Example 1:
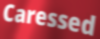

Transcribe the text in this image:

Caressed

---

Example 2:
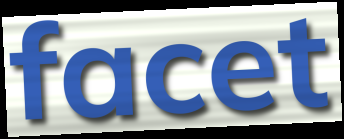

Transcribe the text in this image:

facet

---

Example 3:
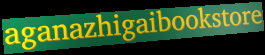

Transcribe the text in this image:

aganazhigaibookstore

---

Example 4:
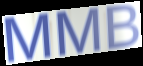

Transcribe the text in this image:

MMB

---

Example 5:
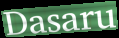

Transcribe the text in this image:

Dasaru